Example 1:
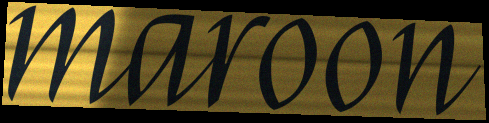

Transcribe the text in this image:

maroon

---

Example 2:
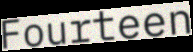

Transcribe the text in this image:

Fourteen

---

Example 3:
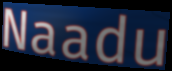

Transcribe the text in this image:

Naadu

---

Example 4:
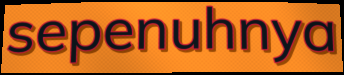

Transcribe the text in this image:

sepenuhnya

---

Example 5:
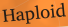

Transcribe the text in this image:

Haploid